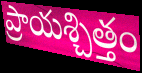
ప్రాయశ్చిత్తం